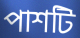
পাশটি